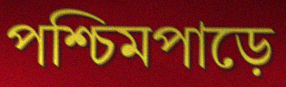
পশ্চিমপাড়ে